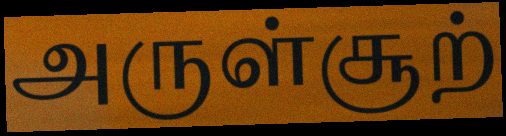
அருள்சூற்